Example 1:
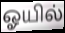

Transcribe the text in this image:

ஓயில்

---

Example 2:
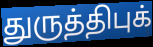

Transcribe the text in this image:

துருத்திபுக்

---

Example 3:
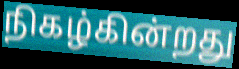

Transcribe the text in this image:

நிகழ்கின்றது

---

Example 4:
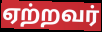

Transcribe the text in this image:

ஏற்றவர்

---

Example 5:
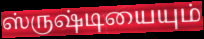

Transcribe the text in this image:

ஸ்ருஷ்டியையும்